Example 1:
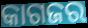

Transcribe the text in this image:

କାଗଜର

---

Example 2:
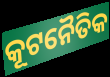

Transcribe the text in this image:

କୂଟନୈତିକ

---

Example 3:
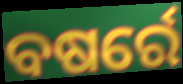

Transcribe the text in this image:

ବଷର୍ରେ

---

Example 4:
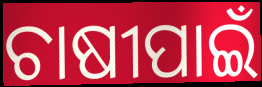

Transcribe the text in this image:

ଚାଷୀପାଇଁ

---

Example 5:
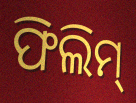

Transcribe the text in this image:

ଫିଲିମ୍